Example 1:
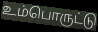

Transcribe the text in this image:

உம்பொருட்டு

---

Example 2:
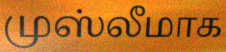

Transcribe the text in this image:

முஸ்லீமாக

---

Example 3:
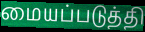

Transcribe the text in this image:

மையப்படுத்தி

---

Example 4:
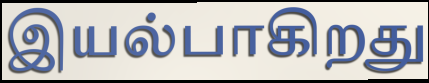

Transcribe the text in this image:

இயல்பாகிறது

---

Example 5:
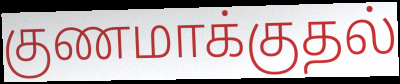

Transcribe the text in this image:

குணமாக்குதல்